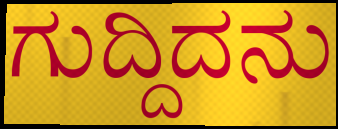
ಗುದ್ದಿದನು